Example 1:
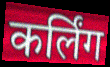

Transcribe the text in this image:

कर्लिंग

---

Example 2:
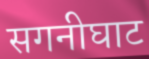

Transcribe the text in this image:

सगनीघाट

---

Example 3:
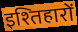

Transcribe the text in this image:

इश्तिहारों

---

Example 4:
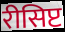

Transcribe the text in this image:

रीसिप्ट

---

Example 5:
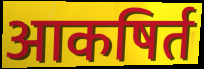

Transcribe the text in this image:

आकषिर्त